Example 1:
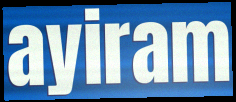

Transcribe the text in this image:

ayiram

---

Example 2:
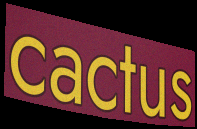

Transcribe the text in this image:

cactus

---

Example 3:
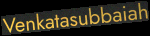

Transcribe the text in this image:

Venkatasubbaiah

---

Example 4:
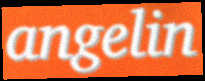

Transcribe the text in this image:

angelin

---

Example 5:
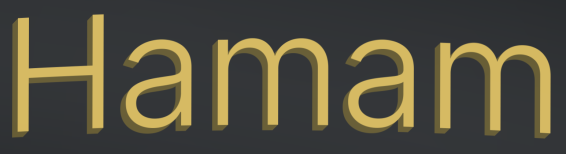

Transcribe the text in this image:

Hamam